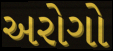
અરોગો